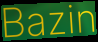
Bazin